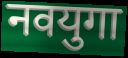
नवयुगा